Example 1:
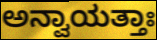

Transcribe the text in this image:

ಅನ್ವಾಯತ್ತಾಃ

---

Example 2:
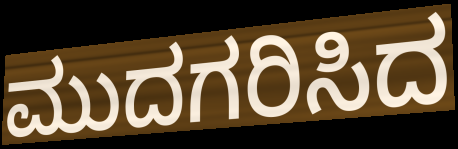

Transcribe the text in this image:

ಮುದಗರಿಸಿದ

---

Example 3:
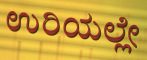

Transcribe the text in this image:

ಉರಿಯಲ್ಲೇ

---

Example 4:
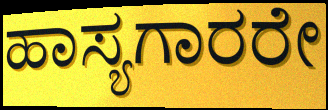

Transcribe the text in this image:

ಹಾಸ್ಯಗಾರರೇ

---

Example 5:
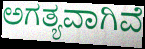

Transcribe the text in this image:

ಅಗತ್ಯವಾಗಿವೆ